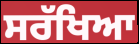
ਸਰੱਖਿਆ